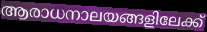
ആരാധനാലയങ്ങളിലേക്ക്